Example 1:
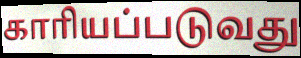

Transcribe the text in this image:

காரியப்படுவது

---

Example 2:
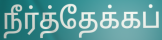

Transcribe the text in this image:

நீர்த்தேக்கப்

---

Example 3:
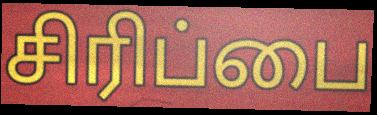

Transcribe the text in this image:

சிரிப்பை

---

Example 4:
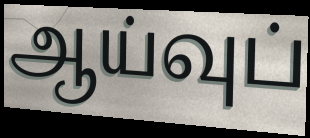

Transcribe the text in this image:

ஆய்வுப்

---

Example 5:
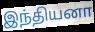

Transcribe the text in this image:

இந்தியனா